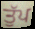
ਤੁੱਪ